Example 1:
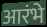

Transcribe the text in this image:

आरंभे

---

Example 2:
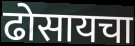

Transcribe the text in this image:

ढोसायचा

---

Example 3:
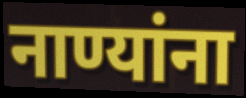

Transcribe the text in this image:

नाण्यांना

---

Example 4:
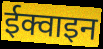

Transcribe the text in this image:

ईक्वाइन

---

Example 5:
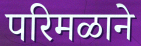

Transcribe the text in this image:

परिमळाने